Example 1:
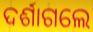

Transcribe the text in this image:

ଦର୍ଶାଗଲେ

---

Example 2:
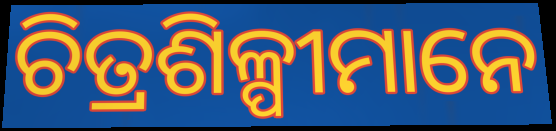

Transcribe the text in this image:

ଚିତ୍ରଶିଳ୍ପୀମାନେ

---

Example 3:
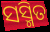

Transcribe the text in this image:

ସସ୍ମିତ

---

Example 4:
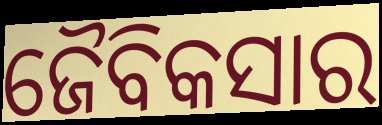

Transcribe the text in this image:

ଜୈବିକସାର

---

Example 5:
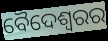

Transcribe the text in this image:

ବୈଦେଶ୍ୱରର